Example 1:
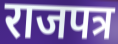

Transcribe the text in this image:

राजपत्र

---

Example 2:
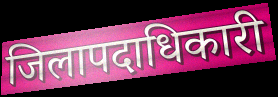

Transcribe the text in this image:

जिलापदाधिकारी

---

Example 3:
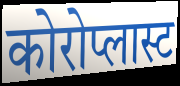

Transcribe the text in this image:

कोरोप्लास्ट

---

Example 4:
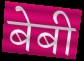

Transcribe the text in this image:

बेबी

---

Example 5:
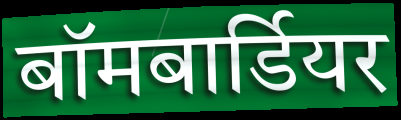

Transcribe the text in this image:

बॉमबार्डियर